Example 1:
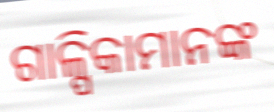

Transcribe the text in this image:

ଗାଳ୍ପିକାମାନଙ୍କ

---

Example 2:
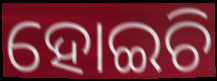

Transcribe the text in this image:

ହୋଇଚି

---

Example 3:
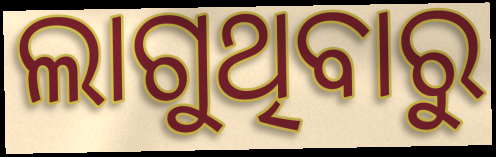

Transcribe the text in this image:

ଲାଗୁଥିବାରୁ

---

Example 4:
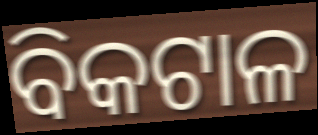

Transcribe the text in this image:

ବିକଟାଳ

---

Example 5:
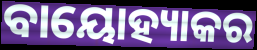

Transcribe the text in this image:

ବାୟୋହ୍ୟାକର